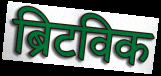
ब्रिटविक